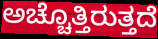
ಅಚ್ಚೊತ್ತಿರುತ್ತದೆ